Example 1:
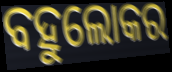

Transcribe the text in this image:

ବହୁଲୋକର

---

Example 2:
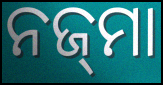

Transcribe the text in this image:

ନଜ୍‌ମା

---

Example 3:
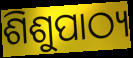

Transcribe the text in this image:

ଶିଶୁପାଠ୍ୟ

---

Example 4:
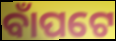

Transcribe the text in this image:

ବାଁପଟେ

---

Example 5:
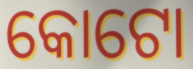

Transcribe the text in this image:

କୋଟୋ